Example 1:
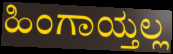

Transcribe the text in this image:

ಹಿಂಗಾಯ್ತಲ್ಲ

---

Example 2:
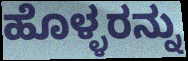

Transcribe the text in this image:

ಹೊಳ್ಳರನ್ನು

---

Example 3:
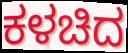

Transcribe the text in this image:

ಕಳಚಿದ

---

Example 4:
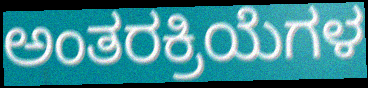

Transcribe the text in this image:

ಅಂತರಕ್ರಿಯೆಗಳ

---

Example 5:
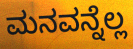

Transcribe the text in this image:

ಮನವನ್ನೆಲ್ಲ